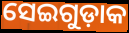
ସେଇଗୁଡ଼ାକ